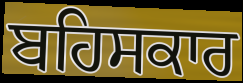
ਬਹਿਸਕਾਰ